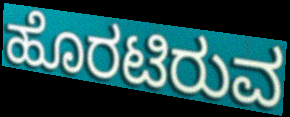
ಹೊರಟಿರುವ